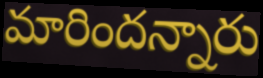
మారిందన్నారు